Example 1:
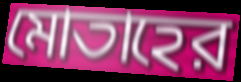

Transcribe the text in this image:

মোতাহের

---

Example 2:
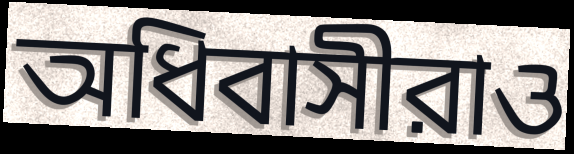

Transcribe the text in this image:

অধিবাসীরাও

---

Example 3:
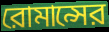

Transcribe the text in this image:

রোমান্সের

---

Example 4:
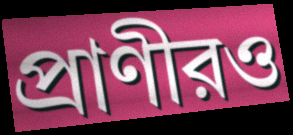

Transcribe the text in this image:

প্রাণীরও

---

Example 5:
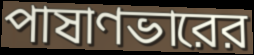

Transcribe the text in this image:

পাষাণভারের